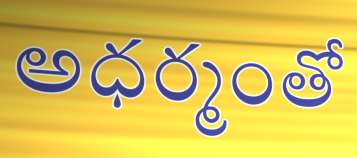
అధర్మంతో